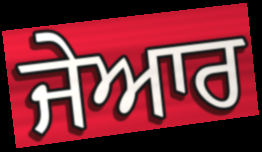
ਜੇਆਰ